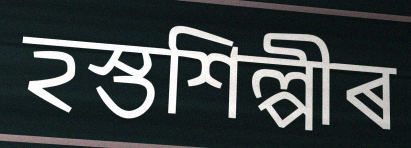
হস্তশিল্পীৰ